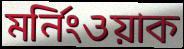
মর্নিংওয়াক